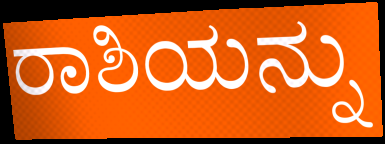
ರಾಶಿಯನ್ನು